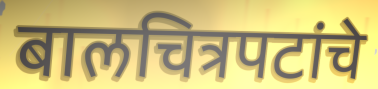
बालचित्रपटांचे